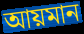
আয়মান